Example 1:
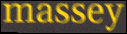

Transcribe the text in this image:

massey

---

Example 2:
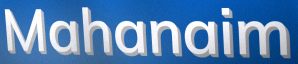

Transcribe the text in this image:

Mahanaim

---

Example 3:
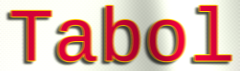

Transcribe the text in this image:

Tabol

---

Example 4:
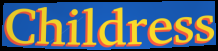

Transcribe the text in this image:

Childress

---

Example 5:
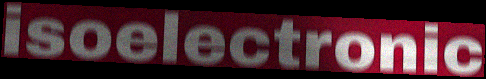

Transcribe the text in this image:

isoelectronic